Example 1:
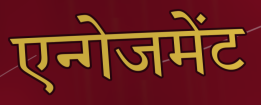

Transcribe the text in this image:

एन्गेजमेंट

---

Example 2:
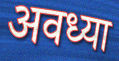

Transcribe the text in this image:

अवध्या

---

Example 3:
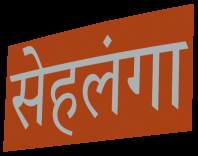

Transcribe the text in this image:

सेहलंगा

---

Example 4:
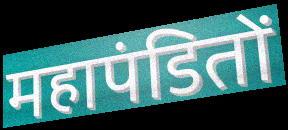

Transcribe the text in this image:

महापंडितों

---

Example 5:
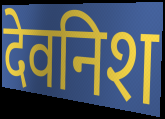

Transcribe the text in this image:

देवनिश